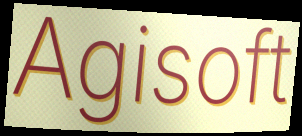
Agisoft